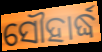
ସୌହାର୍ଦ୍ଧ